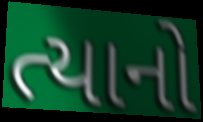
ત્યાનો